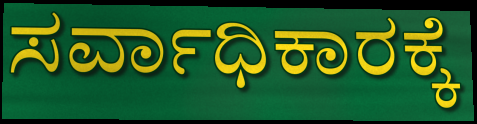
ಸರ್ವಾಧಿಕಾರಕ್ಕೆ